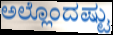
ಅಲ್ಲೊಂದಷ್ಟು